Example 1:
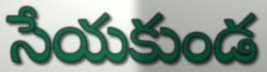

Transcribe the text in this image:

సేయకుండ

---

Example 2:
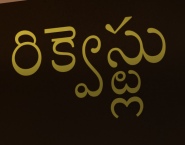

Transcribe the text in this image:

రిక్వెస్ట్లు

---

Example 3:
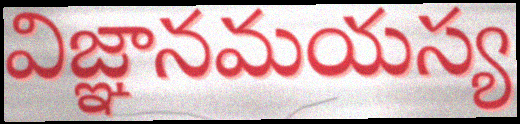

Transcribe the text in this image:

విజ్ఞానమయస్య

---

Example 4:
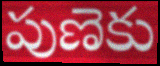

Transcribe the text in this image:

పుణెకు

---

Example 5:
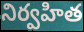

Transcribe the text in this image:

నిర్వహిత